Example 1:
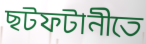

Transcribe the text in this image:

ছটফটানীতে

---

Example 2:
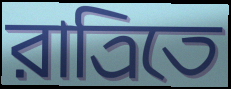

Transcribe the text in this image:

রাত্রিতে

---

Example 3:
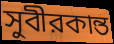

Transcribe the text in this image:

সুবীরকান্ত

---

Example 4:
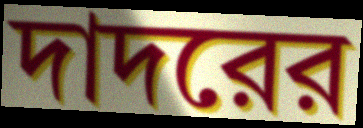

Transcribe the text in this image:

দাদরের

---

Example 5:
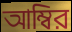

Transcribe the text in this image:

আম্বির